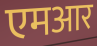
एमआर